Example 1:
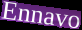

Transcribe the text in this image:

Ennavo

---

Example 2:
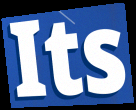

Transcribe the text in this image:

Its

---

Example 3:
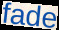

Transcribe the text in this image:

fade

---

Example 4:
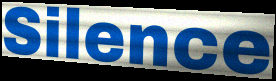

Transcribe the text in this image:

Silence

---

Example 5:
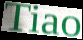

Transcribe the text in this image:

Tiao